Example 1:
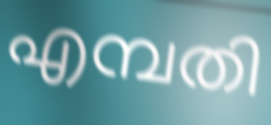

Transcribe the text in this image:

എമ്പതി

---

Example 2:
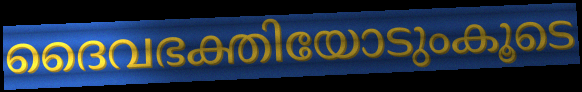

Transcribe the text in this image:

ദൈവഭക്തിയോടുംകൂടെ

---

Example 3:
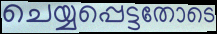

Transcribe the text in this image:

ചെയ്യപ്പെട്ടതോടെ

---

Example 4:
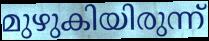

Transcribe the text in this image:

മുഴുകിയിരുന്ന്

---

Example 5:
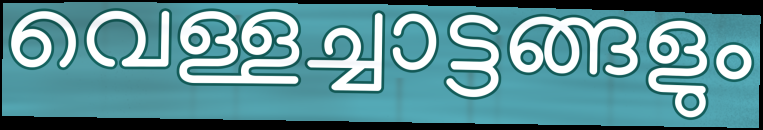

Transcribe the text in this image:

വെള്ളച്ചാട്ടങ്ങളും